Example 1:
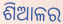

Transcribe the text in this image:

ଶିଆଳର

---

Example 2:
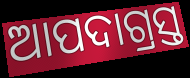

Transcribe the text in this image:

ଆପଦାଗ୍ରସ୍ତ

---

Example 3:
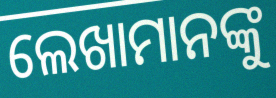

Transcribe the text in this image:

ଲେଖାମାନଙ୍କୁ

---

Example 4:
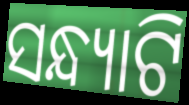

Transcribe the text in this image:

ସନ୍ଧ୍ୟାଟି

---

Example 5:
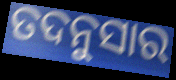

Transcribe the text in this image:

ତଦନୁସାର